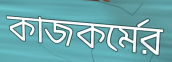
কাজকর্মের